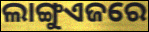
ଲାଙ୍ଗୁଏଜରେ